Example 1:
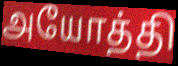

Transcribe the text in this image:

அயோத்தி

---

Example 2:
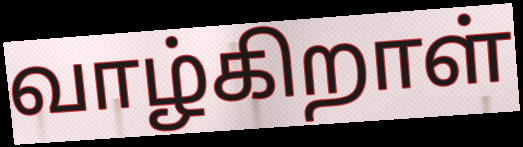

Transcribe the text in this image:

வாழ்கிறாள்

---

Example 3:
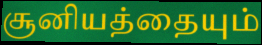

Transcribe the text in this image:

சூனியத்தையும்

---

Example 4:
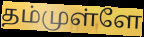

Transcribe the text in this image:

தம்முள்ளே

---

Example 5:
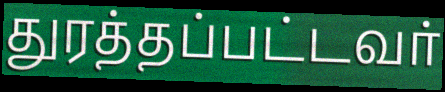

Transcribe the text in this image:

துரத்தப்பட்டவர்